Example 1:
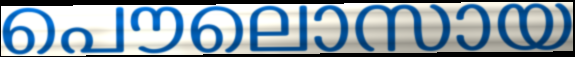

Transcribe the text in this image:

പൌലൊസായ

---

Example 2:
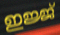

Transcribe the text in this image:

ഇജ്ജ്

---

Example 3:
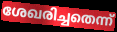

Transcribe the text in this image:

ശേഖരിച്ചതെന്ന്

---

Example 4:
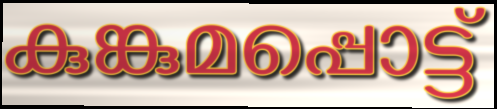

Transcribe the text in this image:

കുങ്കുമപ്പൊട്ട്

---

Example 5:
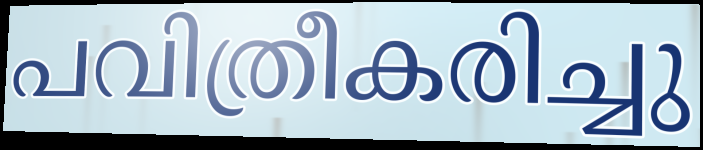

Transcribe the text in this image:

പവിത്രീകരിച്ചു